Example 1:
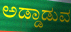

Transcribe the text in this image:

ಅಡ್ಡಾಡುವ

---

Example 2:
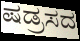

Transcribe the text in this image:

ಷಡ್ರಸದ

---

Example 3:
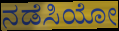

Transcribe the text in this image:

ನಡೆಸಿಯೋ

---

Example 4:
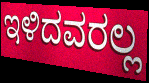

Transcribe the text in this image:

ಇಳಿದವರಲ್ಲ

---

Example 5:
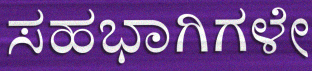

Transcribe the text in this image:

ಸಹಭಾಗಿಗಳೇ